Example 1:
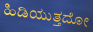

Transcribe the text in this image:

ಹಿಡಿಯುತ್ತದೋ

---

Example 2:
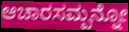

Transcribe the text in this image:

ಆಚಾರಸಮ್ಪನ್ನೋ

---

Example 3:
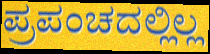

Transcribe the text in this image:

ಪ್ರಪಂಚದಲ್ಲಿಲ್ಲ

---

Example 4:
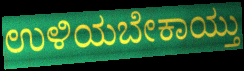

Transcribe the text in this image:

ಉಳಿಯಬೇಕಾಯ್ತು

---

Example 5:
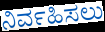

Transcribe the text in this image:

ನಿರ್ವಹಿಸಲು